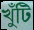
খুঁটি